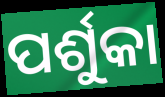
ପର୍ଶୁକା